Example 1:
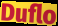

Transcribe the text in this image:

Duflo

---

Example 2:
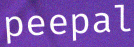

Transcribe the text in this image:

peepal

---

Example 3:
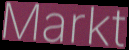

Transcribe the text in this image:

Markt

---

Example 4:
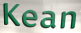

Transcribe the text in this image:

Kean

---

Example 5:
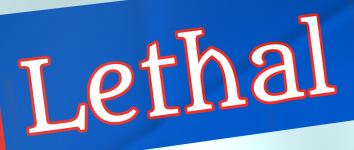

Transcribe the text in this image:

Lethal